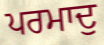
ਪਰਮਾਦੁ